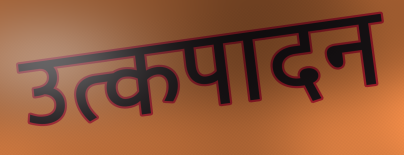
उत्कपादन